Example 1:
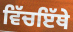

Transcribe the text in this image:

ਵਿੱਚਇੱਥੇ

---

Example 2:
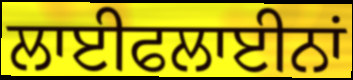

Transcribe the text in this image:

ਲਾਈਫਲਾਈਨਾਂ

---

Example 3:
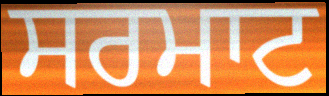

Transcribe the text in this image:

ਸਰਮਾਟ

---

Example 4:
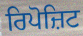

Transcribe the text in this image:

ਰਿਪੋਜ਼ਿਟ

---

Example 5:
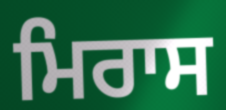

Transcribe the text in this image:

ਮਿਰਾਸ